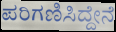
ಪರಿಗಣಿಸಿದ್ದೇನೆ